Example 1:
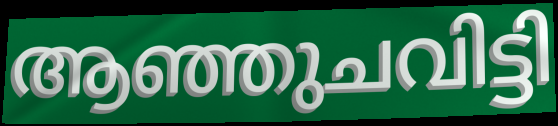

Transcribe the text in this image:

ആഞ്ഞുചവിട്ടി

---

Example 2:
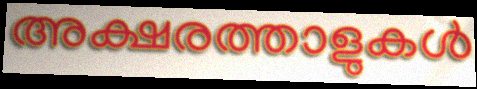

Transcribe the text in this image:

അക്ഷരത്താളുകൾ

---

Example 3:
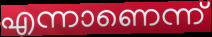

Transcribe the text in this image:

എന്നാണെന്ന്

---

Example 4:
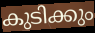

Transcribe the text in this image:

കുടിക്കും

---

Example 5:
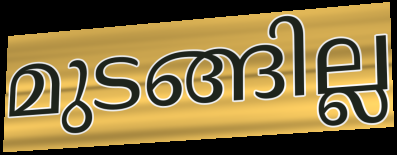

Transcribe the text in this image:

മുടങ്ങില്ല